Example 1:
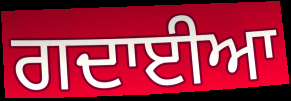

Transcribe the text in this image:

ਗਦਾਈਆ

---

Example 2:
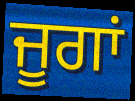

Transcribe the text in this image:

ਜੂਗਾਂ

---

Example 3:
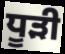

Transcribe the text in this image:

ਧੂੜੀ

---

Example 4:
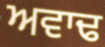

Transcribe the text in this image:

ਅਵਾਢ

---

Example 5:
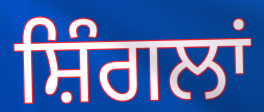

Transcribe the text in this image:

ਸ਼ਿੰਗਲਾਂ